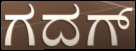
ಗದಗ್